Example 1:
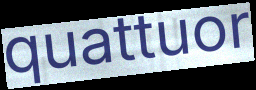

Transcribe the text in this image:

quattuor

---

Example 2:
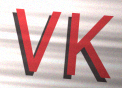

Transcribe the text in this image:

VK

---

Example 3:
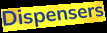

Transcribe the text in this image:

Dispensers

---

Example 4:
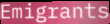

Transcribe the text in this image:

Emigrants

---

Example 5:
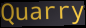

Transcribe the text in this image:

Quarry